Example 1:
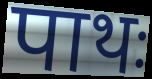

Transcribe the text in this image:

पाथः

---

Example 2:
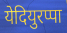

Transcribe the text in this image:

येदियुरप्पा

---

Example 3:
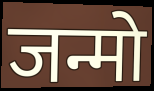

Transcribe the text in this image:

जन्मो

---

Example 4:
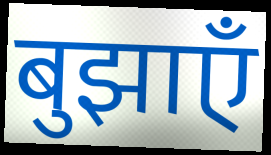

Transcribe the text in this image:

बुझाएँ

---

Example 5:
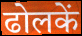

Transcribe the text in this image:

ढोलकें